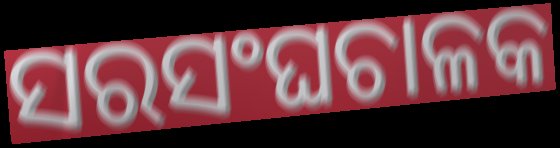
ସରସଂଘଚାଳକ